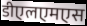
डीएलएमएस